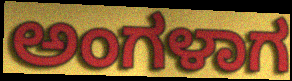
ಅಂಗಳಾಗ